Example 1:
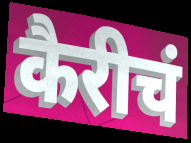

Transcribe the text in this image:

कैरीचं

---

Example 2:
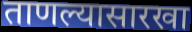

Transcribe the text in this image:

ताणल्यासारखा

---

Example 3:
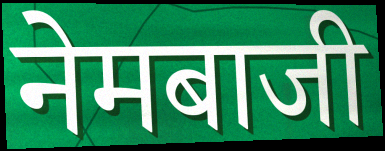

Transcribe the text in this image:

नेमबाजी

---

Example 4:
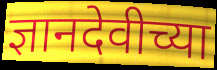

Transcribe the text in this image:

ज्ञानदेवीच्या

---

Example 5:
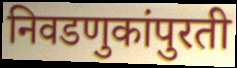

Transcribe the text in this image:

निवडणुकांपुरती